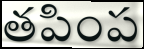
తపింప